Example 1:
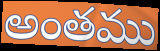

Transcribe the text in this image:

అంతము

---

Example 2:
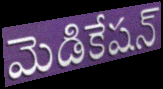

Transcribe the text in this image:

మెడికేషన్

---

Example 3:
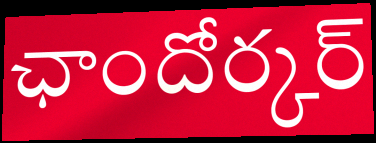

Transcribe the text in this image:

ఛాందోర్కర్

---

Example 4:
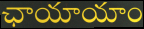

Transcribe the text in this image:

ఛాయాయాం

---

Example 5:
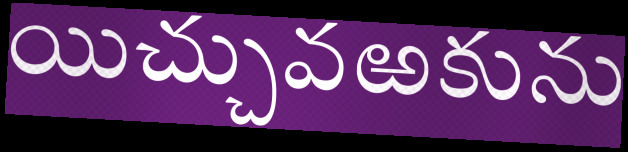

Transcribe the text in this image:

యిచ్చువఱకును